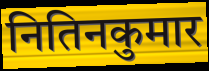
नितिनकुमार